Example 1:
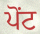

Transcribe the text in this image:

ਪੋਂਟ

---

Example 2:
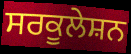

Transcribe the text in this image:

ਸਰਕੂਲੇਸ਼ਨ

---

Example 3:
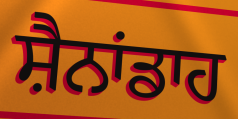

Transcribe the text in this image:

ਸ਼ੈਨਾਂਡਾਹ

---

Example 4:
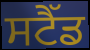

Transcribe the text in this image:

ਸਟੈੱਡ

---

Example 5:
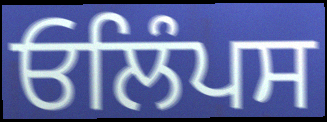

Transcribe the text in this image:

ਓਲਿੰਪਸ